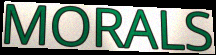
MORALS